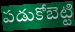
పడుకోబెట్టి